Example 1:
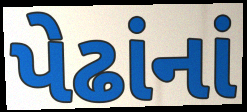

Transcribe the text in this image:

પેઢાંનાં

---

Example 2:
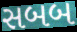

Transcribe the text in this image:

સબબ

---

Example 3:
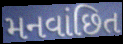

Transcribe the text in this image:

મનવાંછિત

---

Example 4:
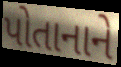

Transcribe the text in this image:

પોતાનાને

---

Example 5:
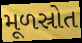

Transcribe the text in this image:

મૂળસ્રોત